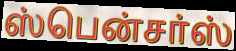
ஸ்பென்சர்ஸ்